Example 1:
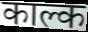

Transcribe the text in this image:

काल्क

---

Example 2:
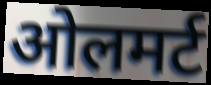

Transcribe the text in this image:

ओलमर्ट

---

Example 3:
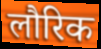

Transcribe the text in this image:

लौरिक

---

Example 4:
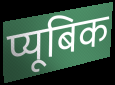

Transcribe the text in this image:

प्यूबिक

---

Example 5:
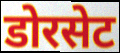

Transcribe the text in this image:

डोरसेट